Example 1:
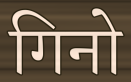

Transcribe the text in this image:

गिनो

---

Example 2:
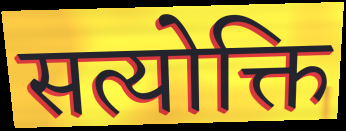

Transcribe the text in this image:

सत्योक्ति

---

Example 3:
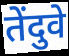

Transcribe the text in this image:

तेंदुवे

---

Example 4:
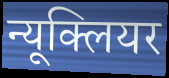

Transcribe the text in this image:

न्यूक्लियर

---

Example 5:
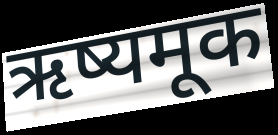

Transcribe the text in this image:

ऋष्यमूक